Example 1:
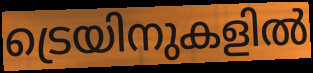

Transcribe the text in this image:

ട്രെയിനുകളിൽ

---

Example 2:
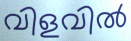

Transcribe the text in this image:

വിളവിൽ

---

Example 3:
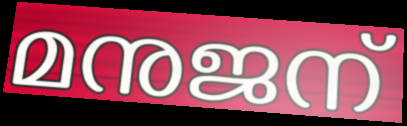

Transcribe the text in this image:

മനുജന്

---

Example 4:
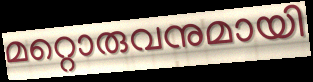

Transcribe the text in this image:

മറ്റൊരുവനുമായി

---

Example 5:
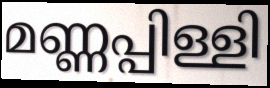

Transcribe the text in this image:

മണ്ണപ്പിള്ളി